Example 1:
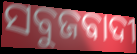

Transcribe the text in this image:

ସବୁଜବାଦୀ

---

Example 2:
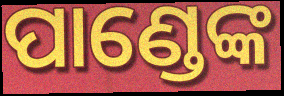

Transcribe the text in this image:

ପାଣ୍ଡେଙ୍କ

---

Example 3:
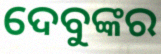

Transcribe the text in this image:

ଦେବୁଙ୍କର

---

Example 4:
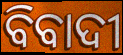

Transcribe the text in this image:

ବିବାଦୀ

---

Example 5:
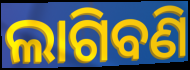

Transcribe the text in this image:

ଲାଗିବଣି